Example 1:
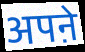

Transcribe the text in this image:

अपऩे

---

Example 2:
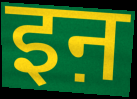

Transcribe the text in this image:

इऩ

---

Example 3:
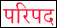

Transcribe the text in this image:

परिपद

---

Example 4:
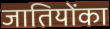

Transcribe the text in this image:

जातियोंका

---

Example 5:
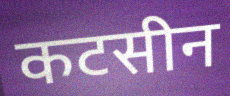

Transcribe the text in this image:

कटसीन